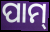
ପାମ୍